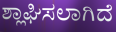
ಶ್ಲಾಘಿಸಲಾಗಿದೆ